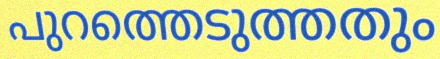
പുറത്തെടുത്തതും